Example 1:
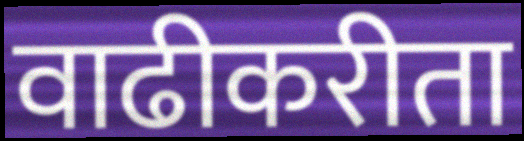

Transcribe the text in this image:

वाढीकरीता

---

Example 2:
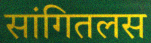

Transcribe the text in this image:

सांगितलस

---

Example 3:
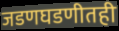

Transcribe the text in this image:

जडणघडणीतही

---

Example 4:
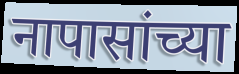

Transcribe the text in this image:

नापासांच्या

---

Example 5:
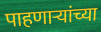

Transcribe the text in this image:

पाहणार्‍यांच्या